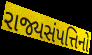
રાજ્યસંપત્તિનો